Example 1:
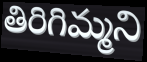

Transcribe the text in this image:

తిరిగిమ్మని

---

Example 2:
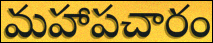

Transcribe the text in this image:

మహాపచారం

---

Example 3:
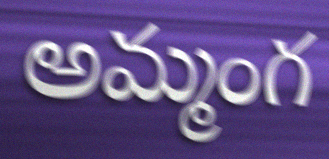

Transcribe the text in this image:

అమ్మంగ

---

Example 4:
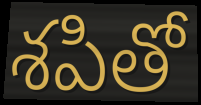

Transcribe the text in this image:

శపితో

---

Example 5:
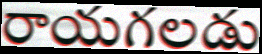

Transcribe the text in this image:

రాయగలడు